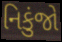
નિકુંજો